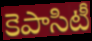
కెపాసిటీ